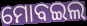
ମୋବଇଲ